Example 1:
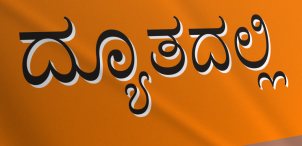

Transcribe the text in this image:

ದ್ಯೂತದಲ್ಲಿ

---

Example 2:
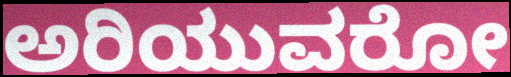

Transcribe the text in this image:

ಅರಿಯುವರೋ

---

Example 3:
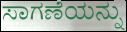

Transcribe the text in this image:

ಸಾಗಣೆಯನ್ನು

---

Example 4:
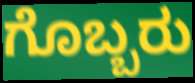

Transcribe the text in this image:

ಗೊಬ್ಬರು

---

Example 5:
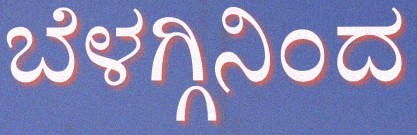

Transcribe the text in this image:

ಬೆಳಗ್ಗಿನಿಂದ